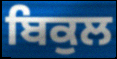
ਬਿਕੁਲ